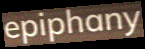
epiphany